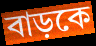
বাড়কে